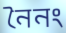
নৈনং